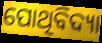
ପୋଥିବିଦ୍ୟା